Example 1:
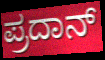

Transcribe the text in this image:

ಪ್ರದಾನ್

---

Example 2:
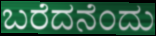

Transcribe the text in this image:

ಬರೆದನೆಂದು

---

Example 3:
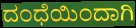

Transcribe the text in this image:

ದಂಧೆಯಿಂದಾಗಿ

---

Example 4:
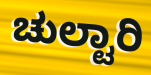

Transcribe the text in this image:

ಚುಲ್ಟಾರಿ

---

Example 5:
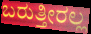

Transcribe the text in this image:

ಬರುತ್ತೀರಲ್ಲ